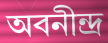
অবনীন্দ্র